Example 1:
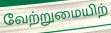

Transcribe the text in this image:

வேற்றுமையிற்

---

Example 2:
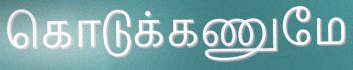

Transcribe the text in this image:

கொடுக்கணுமே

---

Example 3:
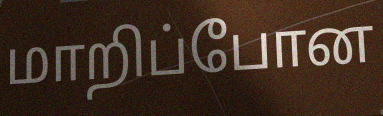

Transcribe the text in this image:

மாறிப்போன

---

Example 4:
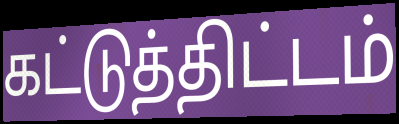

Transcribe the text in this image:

கட்டுத்திட்டம்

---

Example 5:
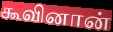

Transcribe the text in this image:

கூவினான்